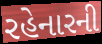
રહેનારની